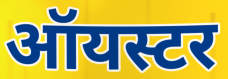
ऑयस्टर